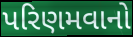
પરિણમવાનો